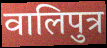
वालिपुत्र